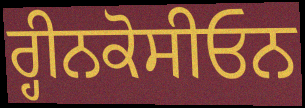
ਰ੍ਹੀਨਕੋਸੀਓਨ